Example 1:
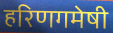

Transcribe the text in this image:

हरिणगमेषी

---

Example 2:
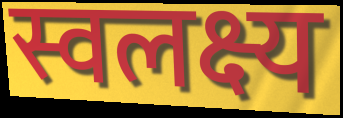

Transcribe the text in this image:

स्वलक्ष्य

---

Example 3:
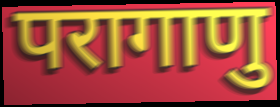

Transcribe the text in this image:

परागाणु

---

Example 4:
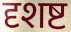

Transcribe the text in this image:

दृशष्ट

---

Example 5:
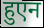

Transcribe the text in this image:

हुएन